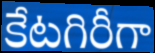
కేటగిరీగా